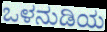
ಒಳನುಡಿಯ